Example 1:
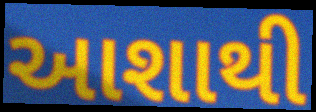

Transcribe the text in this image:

આશાથી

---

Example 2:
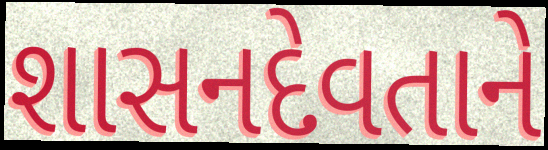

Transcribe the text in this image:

શાસનદેવતાને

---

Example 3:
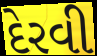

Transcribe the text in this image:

દેરવી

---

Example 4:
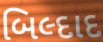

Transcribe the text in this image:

બિલ્દાદ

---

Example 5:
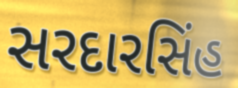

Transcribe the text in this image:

સરદારસિંહ